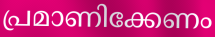
പ്രമാണിക്കേണം